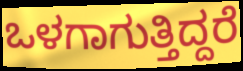
ಒಳಗಾಗುತ್ತಿದ್ದರೆ